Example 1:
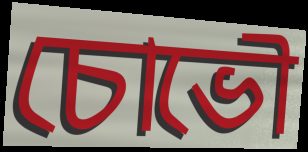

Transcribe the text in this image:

চোভৌ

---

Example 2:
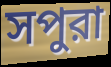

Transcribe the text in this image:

সপুরা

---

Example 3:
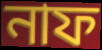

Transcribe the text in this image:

নাফ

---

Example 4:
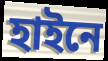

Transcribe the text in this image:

হাইনে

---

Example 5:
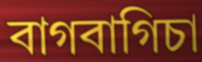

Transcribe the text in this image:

বাগবাগিচা